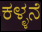
ಕಳ್ಳನೆ